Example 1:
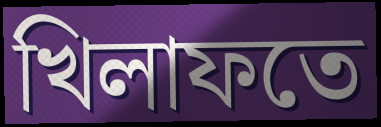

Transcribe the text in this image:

খিলাফতে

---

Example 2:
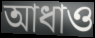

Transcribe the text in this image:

আধাও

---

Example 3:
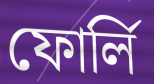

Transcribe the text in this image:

ফোর্লি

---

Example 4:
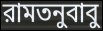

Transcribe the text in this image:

রামতনুবাবু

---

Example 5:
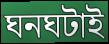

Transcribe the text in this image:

ঘনঘটাই